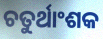
ଚତୁର୍ଥାଂଶକ